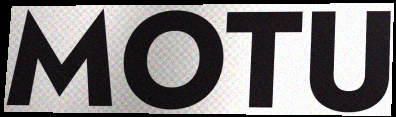
MOTU